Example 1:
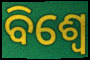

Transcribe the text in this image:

ବିଶ୍ଵେ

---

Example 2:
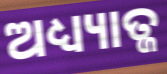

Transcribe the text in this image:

ଅଧ୍ୟ୍ୟାତ୍ଜ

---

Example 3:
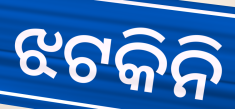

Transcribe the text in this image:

ଝଟକିନି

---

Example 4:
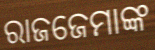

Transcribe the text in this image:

ରାଜଜେମାଙ୍କ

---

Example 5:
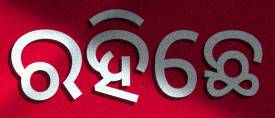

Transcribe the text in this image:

ରହିଛେ